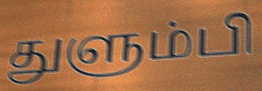
துளும்பி